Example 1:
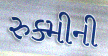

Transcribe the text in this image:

રુક્મીની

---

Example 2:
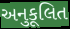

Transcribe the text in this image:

અનુકૂલિત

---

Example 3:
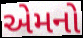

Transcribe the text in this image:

એમનો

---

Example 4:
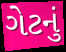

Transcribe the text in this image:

ગેટનું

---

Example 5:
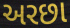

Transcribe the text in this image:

અરછા